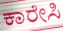
ಕಾರೇಸಿ